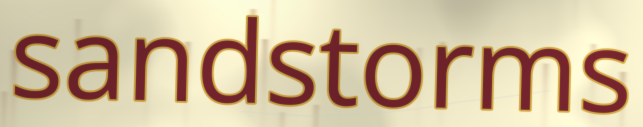
sandstorms